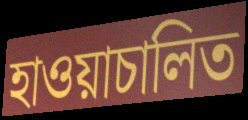
হাওয়াচালিত